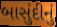
બાસુંદીનું